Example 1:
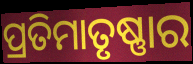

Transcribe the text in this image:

ପ୍ରତିମାତୃଷ୍ଣାର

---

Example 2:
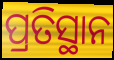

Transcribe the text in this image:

ପ୍ରତିସ୍ଥାନ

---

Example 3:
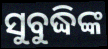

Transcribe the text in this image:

ସୁବୁଦ୍ଧିଙ୍କ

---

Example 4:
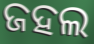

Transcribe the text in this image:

ଜହଲ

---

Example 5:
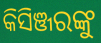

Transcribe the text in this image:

କିସିଞ୍ଜରଙ୍କୁ